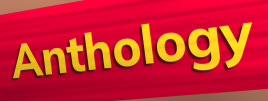
Anthology